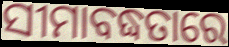
ସୀମାବଦ୍ଧତାରେ